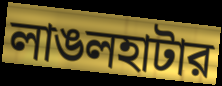
লাঙলহাটার